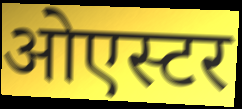
ओएस्टर